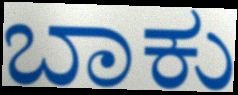
ಬಾಕು